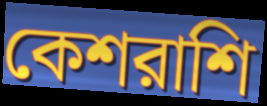
কেশরাশি